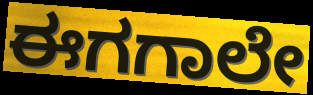
ಈಗಗಾಲೇ